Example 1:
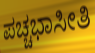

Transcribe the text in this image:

ಪಚ್ಚಭಾಸೀತಿ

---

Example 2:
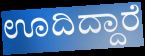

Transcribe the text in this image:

ಊದಿದ್ದಾರೆ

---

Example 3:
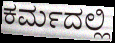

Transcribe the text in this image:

ಕರ್ಮದಲ್ಲಿ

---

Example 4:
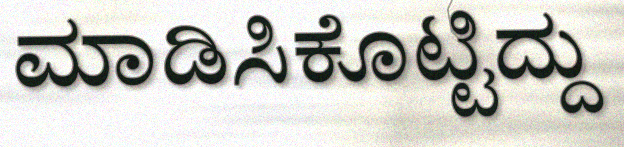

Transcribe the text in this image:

ಮಾಡಿಸಿಕೊಟ್ಟಿದ್ದು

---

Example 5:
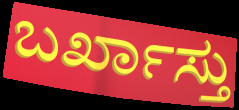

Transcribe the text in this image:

ಬರ್ಖಾಸ್ತು